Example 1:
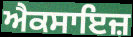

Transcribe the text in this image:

ਐਕਸਾਇਜ਼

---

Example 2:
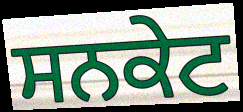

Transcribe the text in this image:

ਸਨਕੇਟ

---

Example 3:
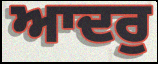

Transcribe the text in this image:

ਆਦਰੁ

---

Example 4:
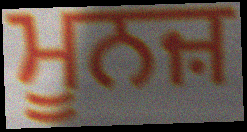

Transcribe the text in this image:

ਮੂਨਜ਼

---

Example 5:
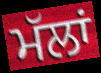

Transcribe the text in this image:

ਮੱਲਾਂ